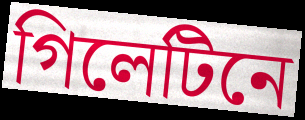
গিলেটিনে